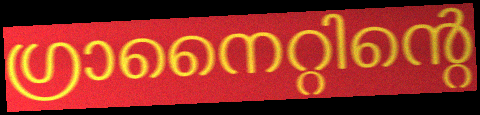
ഗ്രാനൈറ്റിന്റെ